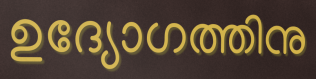
ഉദ്യോഗത്തിനു